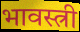
भावस्त्री